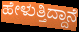
ಹೇಳುತ್ತಿದ್ದಾನೆ